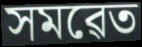
সমৱেত